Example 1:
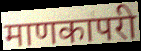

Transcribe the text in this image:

माणकापरी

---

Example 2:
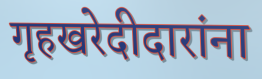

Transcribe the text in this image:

गृहखरेदीदारांना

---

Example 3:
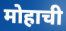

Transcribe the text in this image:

मोहाची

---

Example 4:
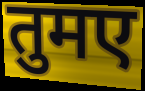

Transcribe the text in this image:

तुमए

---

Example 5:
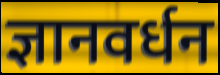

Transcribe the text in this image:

ज्ञानवर्धन